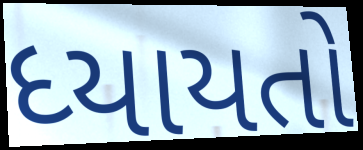
ધ્યાયતો